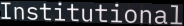
Institutional